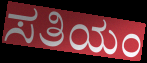
ಸತಿಯಂ